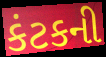
કંટકની